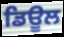
ਡਿਊਲ